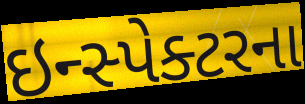
ઇન્સ્પેક્ટરના